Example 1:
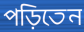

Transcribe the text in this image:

পড়িতেন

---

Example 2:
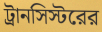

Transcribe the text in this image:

ট্রানসিস্টরের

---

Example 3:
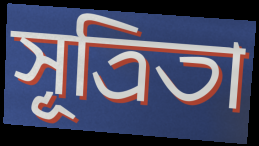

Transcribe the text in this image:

সূত্রিতা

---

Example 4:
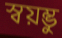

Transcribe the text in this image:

স্বয়ম্ভু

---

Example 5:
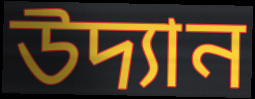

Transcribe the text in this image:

উদ্যান